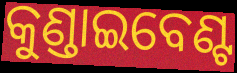
କୁଣ୍ଡାଇବେଣ୍ଟ